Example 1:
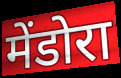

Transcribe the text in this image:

मेंडोरा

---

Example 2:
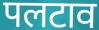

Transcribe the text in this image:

पलटाव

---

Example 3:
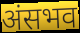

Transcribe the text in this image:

अंसभव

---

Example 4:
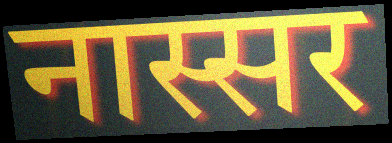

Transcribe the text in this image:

नास्सर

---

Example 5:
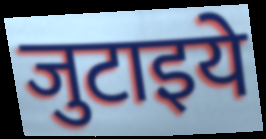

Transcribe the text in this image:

जुटाइये